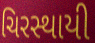
ચિરસ્થાયી